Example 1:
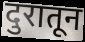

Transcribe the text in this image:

दुरातून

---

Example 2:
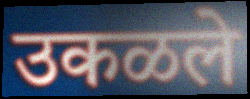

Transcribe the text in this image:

उकळले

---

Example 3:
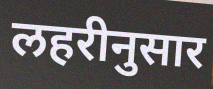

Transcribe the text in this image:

लहरीनुसार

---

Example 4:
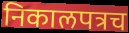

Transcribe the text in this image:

निकालपत्रच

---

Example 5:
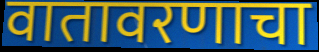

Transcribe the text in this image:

वातावरणाचा